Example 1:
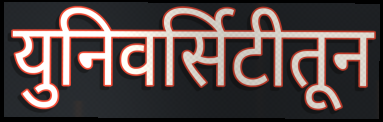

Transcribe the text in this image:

युनिवर्सिटीतून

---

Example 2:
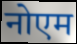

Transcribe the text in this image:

नोएम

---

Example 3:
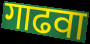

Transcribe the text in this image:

गाढवा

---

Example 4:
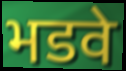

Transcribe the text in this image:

भडवे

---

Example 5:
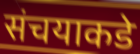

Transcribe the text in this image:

संचयाकडे